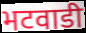
भटवाडी